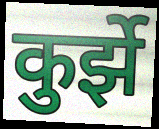
कुर्झे